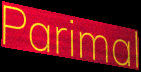
Parimal